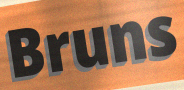
Bruns